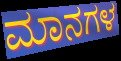
ಮಾನಗಳ